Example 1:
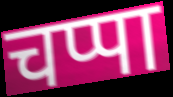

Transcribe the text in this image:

चप्पा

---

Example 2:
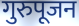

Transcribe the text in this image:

गुरुपूजन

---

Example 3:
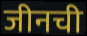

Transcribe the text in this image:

जीनची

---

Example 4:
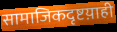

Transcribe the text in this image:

सामाजिकदृष्टय़ाही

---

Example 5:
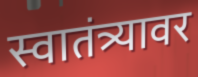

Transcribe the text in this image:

स्वातंत्र्यावर